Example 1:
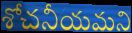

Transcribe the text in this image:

శోచనీయమని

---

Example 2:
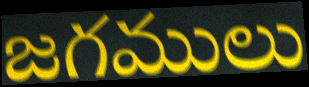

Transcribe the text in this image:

జగములు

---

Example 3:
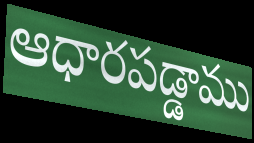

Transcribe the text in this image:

ఆధారపడ్డాము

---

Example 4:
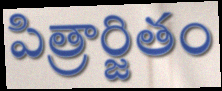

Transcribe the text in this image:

పిత్రార్జితం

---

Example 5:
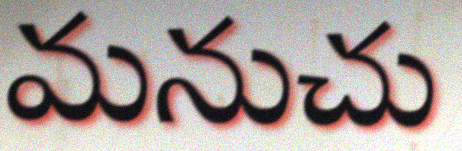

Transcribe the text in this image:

మనుచు